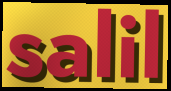
salil